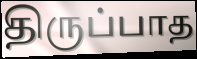
திருப்பாத